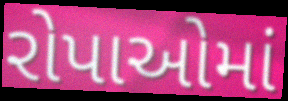
રોપાઓમાં